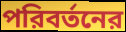
পরিবর্তনের